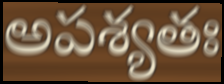
అపశ్యతః